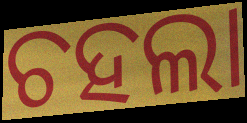
ଚହଲା